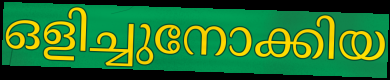
ഒളിച്ചുനോക്കിയ